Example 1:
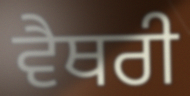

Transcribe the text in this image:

ਵੈਥਰੀ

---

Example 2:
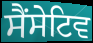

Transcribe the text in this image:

ਸੈਂਸੇਟਿਵ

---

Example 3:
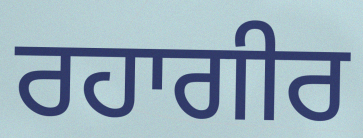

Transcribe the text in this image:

ਰਹਾਗੀਰ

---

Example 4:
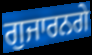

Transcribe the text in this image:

ਗੁਜਾਰਨਗੇ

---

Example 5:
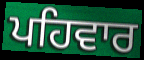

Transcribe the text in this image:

ਪਹਿਵਾਰ